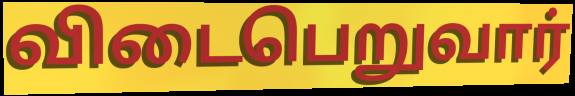
விடைபெறுவார்